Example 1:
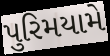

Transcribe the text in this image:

પુરિમયામે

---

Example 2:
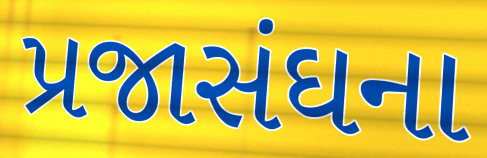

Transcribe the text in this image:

પ્રજાસંઘના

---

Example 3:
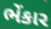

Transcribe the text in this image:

ભેંકાર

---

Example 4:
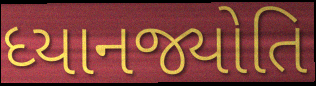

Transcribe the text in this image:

ધ્યાનજ્યોતિ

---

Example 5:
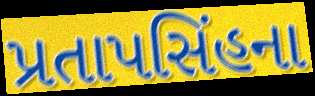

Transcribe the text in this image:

પ્રતાપસિંહના